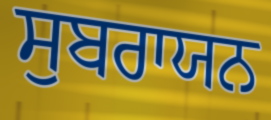
ਸੁਬਰਾਯਨ